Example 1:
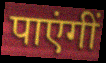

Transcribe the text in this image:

पाएंगीं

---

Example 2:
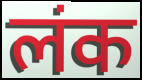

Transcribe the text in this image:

लंक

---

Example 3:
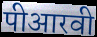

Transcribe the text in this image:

पीआरवी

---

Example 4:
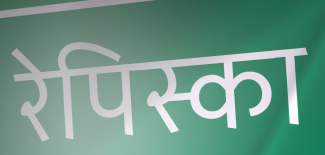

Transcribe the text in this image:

रेपिस्का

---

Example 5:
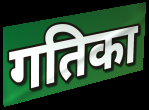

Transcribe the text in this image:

गतिका